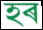
হৰ